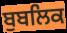
ਬੁਬਲਿਕ